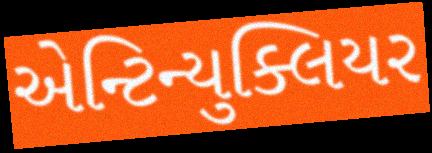
એન્ટિન્યુક્લિયર